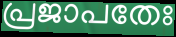
പ്രജാപതേഃ